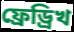
ফ্ৰেড্ৰিখ